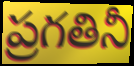
ప్రగతినీ